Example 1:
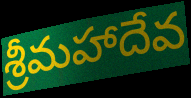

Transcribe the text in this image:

శ్రీమహాదేవ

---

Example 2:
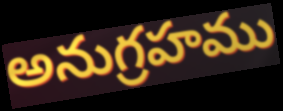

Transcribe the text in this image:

అనుగ్రహము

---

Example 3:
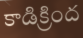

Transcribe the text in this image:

కాడిక్రింద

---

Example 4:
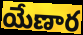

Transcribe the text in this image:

యేణార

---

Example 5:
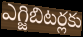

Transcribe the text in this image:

ఎగ్జిబిటర్లకు